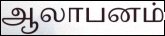
ஆலாபனம்